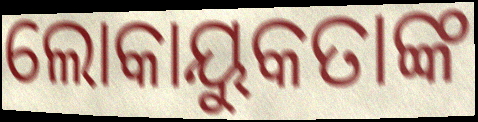
ଲୋକାୟୁକତାଙ୍କ